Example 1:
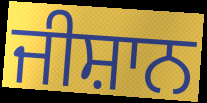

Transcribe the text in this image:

ਜੀਸ਼ਾਨ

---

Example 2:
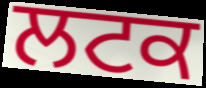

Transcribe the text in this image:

ਲਟਕ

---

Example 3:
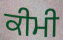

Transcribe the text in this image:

ਕੀਮੀ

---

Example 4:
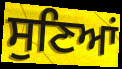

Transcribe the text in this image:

ਸੁਣਿਆਂ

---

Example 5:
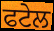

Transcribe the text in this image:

ਫਟੇਲ